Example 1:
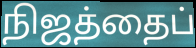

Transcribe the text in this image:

நிஜத்தைப்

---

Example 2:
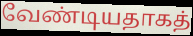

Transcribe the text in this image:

வேண்டியதாகத்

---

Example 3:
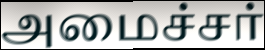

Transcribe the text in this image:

அமைச்சர்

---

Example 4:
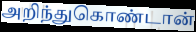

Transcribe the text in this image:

அறிந்துகொண்டான்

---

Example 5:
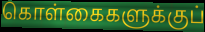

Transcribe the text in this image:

கொள்கைகளுக்குப்